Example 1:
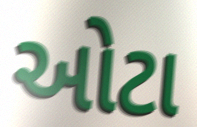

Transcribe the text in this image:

ઓટા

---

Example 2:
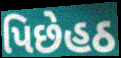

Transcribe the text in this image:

પિછેહઠ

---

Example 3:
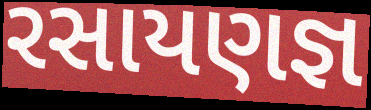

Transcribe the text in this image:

રસાયણજ્ઞ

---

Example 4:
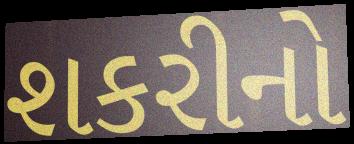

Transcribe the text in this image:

શકરીનો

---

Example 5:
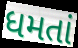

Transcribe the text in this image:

ધમતાં